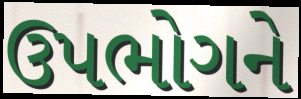
ઉપભોગને